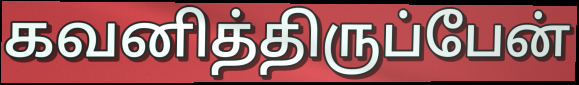
கவனித்திருப்பேன்